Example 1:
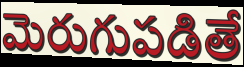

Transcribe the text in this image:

మెరుగుపడితే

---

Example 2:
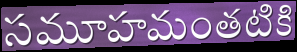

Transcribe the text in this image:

సమూహమంతటికి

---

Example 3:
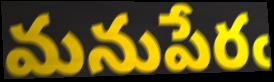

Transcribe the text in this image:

మనుపేరఁ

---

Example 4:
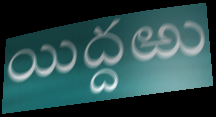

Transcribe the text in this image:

యిద్దఱు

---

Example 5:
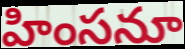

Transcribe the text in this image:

హింసనూ